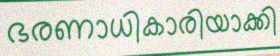
ഭരണാധികാരിയാക്കി